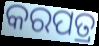
କରପତ୍ର